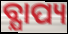
ବ୍ଯାପ୍ୟ